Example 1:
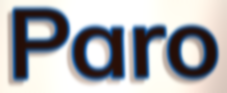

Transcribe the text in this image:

Paro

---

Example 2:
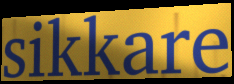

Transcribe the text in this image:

sikkare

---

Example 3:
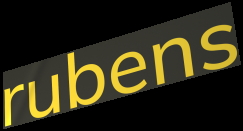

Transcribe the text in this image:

rubens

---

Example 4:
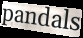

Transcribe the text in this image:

pandals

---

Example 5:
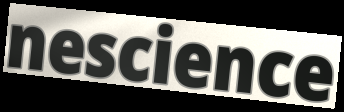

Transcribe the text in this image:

nescience